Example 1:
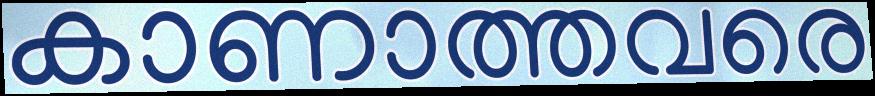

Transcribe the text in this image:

കാണാത്തവരെ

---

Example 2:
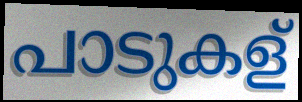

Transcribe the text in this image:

പാടുകള്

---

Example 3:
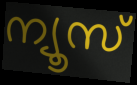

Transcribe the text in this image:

ന്യൂസ്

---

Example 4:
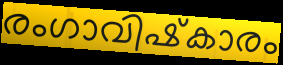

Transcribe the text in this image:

രംഗാവിഷ്‌കാരം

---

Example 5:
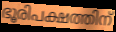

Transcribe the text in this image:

ഭൂരിപക്ഷത്തിന്